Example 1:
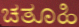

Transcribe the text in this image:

ಚತೂಹಿ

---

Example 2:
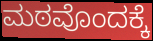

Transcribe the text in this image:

ಮಠವೊಂದಕ್ಕೆ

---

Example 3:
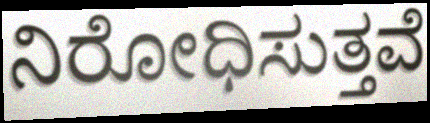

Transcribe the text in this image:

ನಿರೋಧಿಸುತ್ತವೆ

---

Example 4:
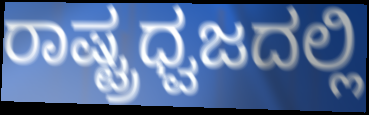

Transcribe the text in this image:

ರಾಷ್ಟ್ರಧ್ವಜದಲ್ಲಿ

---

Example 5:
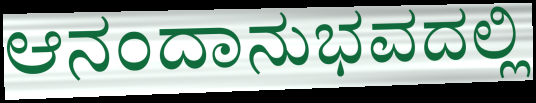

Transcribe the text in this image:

ಆನಂದಾನುಭವದಲ್ಲಿ